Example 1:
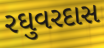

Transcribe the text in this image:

રઘુવરદાસ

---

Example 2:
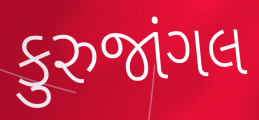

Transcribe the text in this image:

કુરુજાંગલ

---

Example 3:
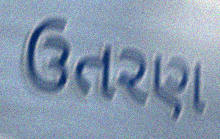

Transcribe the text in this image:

ઉતરણ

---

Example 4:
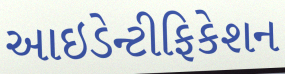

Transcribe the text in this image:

આઇડેન્ટીફિકેશન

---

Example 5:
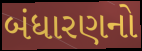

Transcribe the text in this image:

બંધારણનો